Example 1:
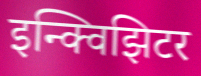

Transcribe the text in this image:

इन्क्विझिटर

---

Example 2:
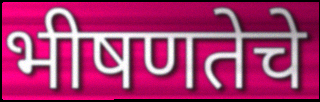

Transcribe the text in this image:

भीषणतेचे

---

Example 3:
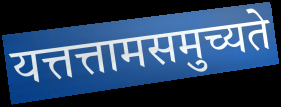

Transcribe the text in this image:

यत्तत्तामसमुच्यते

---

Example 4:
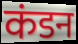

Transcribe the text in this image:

कंडन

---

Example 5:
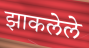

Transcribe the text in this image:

झाकलेले